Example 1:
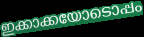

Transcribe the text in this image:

ഇക്കാക്കയോടൊപ്പം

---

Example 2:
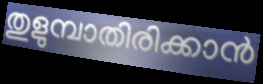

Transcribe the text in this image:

തുളുമ്പാതിരിക്കാൻ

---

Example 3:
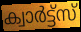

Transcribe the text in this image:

ക്വാർട്ട്സ്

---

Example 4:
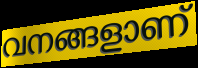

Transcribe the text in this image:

വനങ്ങളാണ്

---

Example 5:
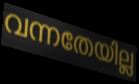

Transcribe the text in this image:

വന്നതേയില്ല